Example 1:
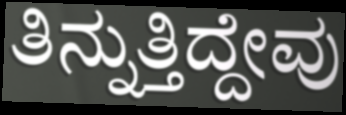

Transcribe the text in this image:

ತಿನ್ನುತ್ತಿದ್ದೇವು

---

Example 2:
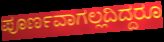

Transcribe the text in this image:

ಪೂರ್ಣವಾಗಲ್ಲದಿದ್ದರೂ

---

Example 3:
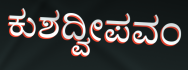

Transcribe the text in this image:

ಕುಶದ್ವೀಪವಂ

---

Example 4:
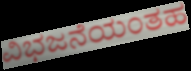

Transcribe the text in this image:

ವಿಭಜನೆಯಂತಹ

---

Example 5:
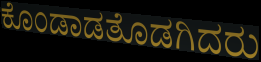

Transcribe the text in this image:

ಕೊಂಡಾಡತೊಡಗಿದರು